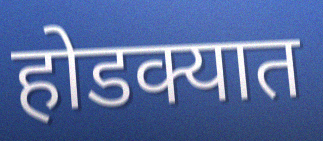
होडक्यात